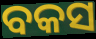
ବକସ